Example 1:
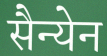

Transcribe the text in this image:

सैन्येन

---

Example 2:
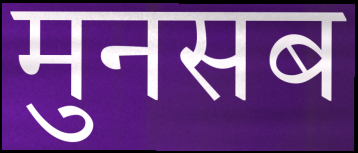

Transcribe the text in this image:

मुनसब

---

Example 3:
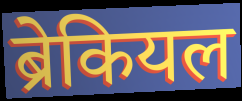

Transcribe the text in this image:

ब्रेकियल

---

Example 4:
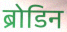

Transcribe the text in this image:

ब्रोडिन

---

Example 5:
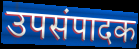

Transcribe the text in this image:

उपसंपादक